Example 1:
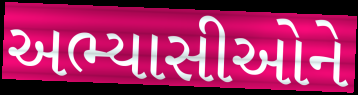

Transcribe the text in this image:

અભ્યાસીઓને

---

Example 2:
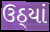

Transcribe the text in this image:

ઉઠ્યાં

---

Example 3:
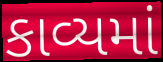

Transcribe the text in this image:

કાવ્યમાં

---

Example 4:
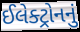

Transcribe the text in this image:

ઈલેક્ટ્રોનનું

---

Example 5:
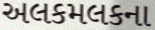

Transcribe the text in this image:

અલકમલકના